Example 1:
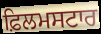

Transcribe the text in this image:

ਫ਼ਿਲਮਸਟਾਰ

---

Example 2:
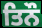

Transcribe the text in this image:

ਤਿਨੌ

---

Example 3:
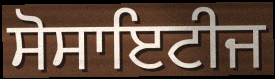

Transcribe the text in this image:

ਸੋਸਾਇਟੀਜ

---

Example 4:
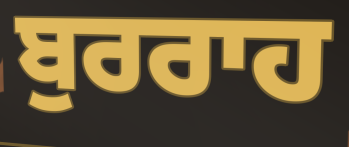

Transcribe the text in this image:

ਬੁਰਰਾਹ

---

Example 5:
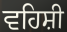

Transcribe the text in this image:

ਵਹਿਸ਼ੀ